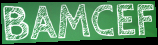
BAMCEF